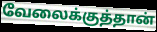
வேலைக்குத்தான்